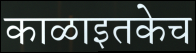
काळाइतकेच